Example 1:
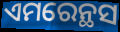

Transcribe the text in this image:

ଏମରେନ୍ଥସ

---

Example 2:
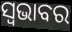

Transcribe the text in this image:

ସ୍ୱଭାବର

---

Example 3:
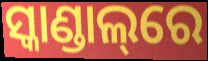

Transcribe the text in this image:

ସ୍କାଣ୍ଡାଲ୍‌ରେ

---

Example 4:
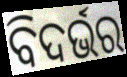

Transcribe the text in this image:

ବିଦର୍ଭର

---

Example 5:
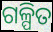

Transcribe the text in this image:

ଗଳ୍ପିତ